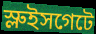
স্লুইসগেটে